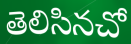
తెలిసినచో